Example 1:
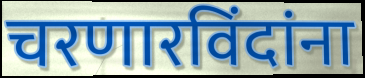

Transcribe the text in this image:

चरणारविंदांना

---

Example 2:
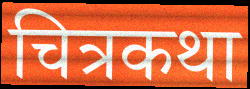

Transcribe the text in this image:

चित्रकथा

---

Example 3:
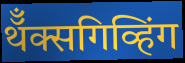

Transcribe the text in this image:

थॅँक्सगिव्हिंग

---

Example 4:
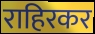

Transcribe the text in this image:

राहिरकर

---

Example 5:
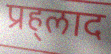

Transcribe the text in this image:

प्रह्‌लाद